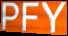
PFY